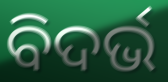
ବିଦର୍ଭ